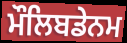
ਮੌਲਿਬਡੇਨਮ